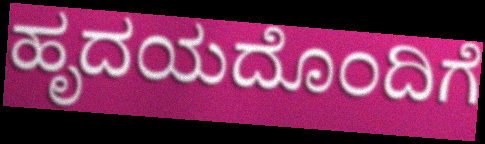
ಹೃದಯದೊಂದಿಗೆ